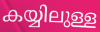
കയ്യിലുള്ള